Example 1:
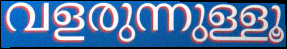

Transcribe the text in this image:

വളരുന്നുള്ളൂ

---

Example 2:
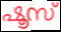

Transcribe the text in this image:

ഷൂസ്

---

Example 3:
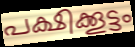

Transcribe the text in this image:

പക്ഷിക്കൂട്ടം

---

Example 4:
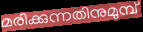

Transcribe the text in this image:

മരിക്കുന്നതിനുമുമ്പ്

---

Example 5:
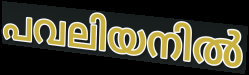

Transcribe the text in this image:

പവലിയനിൽ